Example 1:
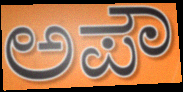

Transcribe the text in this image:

ಅಪೌ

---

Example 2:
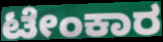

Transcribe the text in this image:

ಟೇಂಕಾರ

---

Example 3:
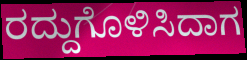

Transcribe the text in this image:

ರದ್ದುಗೊಳಿಸಿದಾಗ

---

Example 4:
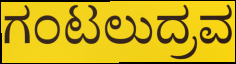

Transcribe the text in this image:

ಗಂಟಲುದ್ರವ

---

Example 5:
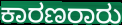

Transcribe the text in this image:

ಕಾರಣರಾರು